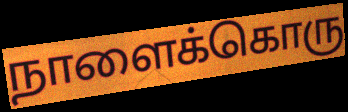
நாளைக்கொரு